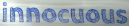
innocuous